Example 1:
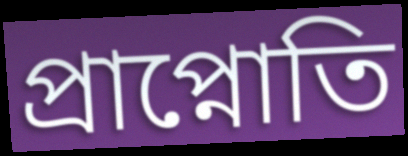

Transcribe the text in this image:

প্রাপ্নোতি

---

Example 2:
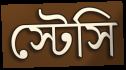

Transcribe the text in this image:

স্টেসি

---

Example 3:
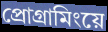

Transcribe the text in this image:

প্রোগ্রামিংয়ে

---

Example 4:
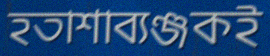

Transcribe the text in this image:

হতাশাব্যঞ্জকই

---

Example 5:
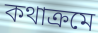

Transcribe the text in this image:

কথাক্রমে